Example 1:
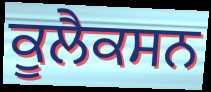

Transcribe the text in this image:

ਕੂਲੈਕਸਨ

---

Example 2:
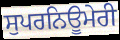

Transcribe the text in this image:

ਸੁਪਰਨਿਊਮੇਰੀ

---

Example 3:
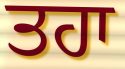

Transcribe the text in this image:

ਤਹਾ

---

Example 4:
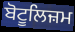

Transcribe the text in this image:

ਬੋਟੂਲਿਜ਼ਮ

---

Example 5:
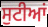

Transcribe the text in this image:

ਸੁਟੀਆਂ